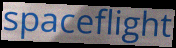
spaceflight